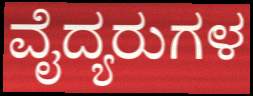
ವೈದ್ಯರುಗಳ